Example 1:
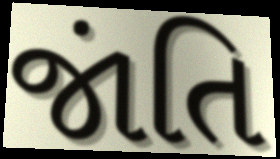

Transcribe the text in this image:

જાંતિ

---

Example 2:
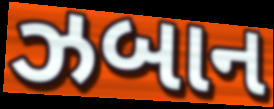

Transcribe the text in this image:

ઝબાન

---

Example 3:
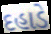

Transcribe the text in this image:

દહાડે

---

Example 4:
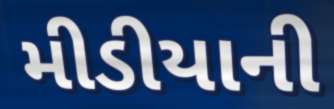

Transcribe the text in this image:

મીડીયાની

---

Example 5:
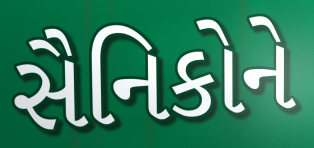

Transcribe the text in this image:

સૈનિકોને